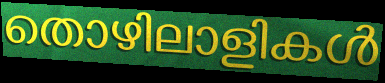
തൊഴിലാളികൾ